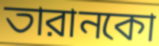
তারানকো